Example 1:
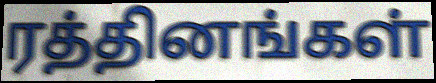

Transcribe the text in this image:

ரத்தினங்கள்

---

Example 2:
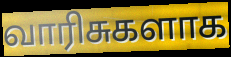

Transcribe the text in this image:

வாரிசுகளாக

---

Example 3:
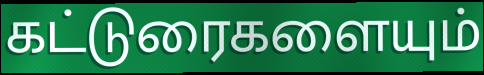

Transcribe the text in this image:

கட்டுரைகளையும்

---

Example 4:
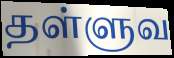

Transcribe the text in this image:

தள்ளுவ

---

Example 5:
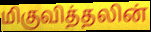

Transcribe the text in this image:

மிகுவித்தலின்